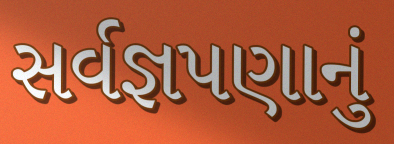
સર્વજ્ઞપણાનું